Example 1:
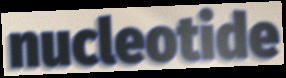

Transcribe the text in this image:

nucleotide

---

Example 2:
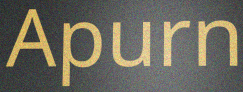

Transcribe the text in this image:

Apurn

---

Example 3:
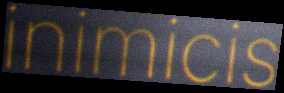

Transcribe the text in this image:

inimicis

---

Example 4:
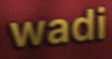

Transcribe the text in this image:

wadi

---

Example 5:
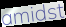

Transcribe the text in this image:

amidst